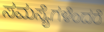
ಸಮಸ್ಯೆಗಳೆಂದರೆ